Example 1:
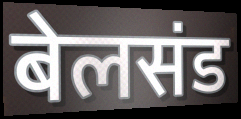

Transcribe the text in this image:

बेलसंड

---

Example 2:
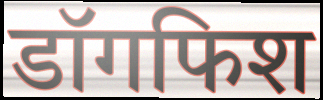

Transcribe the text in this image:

डॉगफिश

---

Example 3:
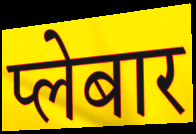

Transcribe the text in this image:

प्लेबार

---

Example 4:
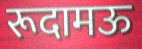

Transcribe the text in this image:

रूदामऊ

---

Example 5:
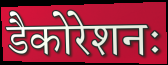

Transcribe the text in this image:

डैकोरेशनः